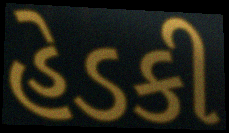
હેડકી